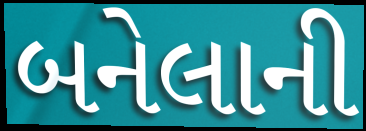
બનેલાની